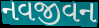
નવજીવન